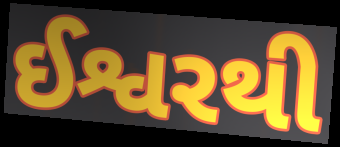
ઈશ્વરથી